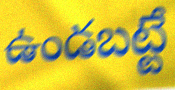
ఉండబట్టే